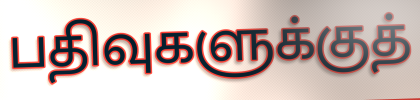
பதிவுகளுக்குத்